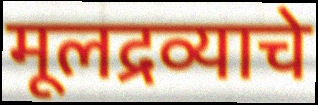
मूलद्रव्याचे